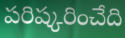
పరిష్కరించేది